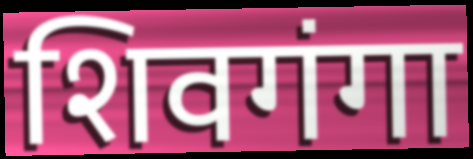
शिवगंगा